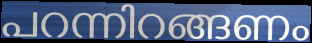
പറന്നിറങ്ങണം